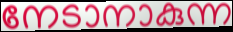
നേടാനാകുന്ന